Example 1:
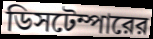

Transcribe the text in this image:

ডিসটেম্পারের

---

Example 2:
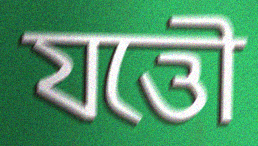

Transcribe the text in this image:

যত্তৌ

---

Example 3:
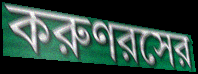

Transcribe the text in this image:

করুণরসের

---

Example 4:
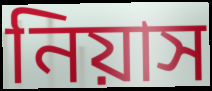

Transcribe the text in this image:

নিয়াস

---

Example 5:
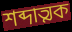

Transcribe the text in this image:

শব্দাত্মক